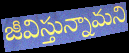
జీవిస్తున్నామని